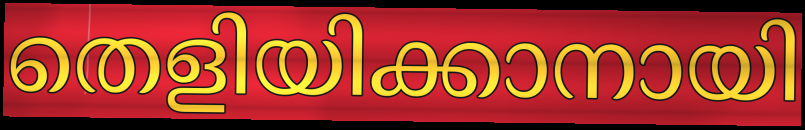
തെളിയിക്കാനായി